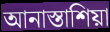
আনাস্তাশিয়া